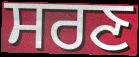
ਸਰਣ